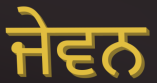
ਜੇਵਨ